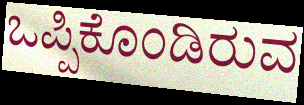
ಒಪ್ಪಿಕೊಂಡಿರುವ